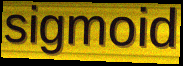
sigmoid